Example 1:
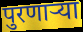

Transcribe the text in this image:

पुरणाऱ्या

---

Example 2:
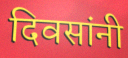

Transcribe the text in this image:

दिवसांनी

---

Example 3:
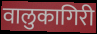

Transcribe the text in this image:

वालुकागिरी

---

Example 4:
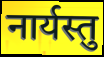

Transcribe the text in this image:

नार्यस्तु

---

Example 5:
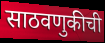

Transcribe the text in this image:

साठवणुकीची